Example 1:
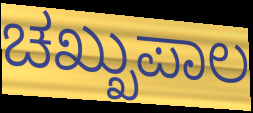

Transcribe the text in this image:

ಚಖ್ಖುಪಾಲ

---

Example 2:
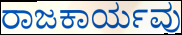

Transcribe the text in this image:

ರಾಜಕಾರ್ಯವು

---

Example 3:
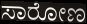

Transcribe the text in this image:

ಸಾರೋಣ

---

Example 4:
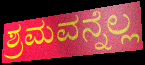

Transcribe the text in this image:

ಶ್ರಮವನ್ನೆಲ್ಲ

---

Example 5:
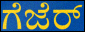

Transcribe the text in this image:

ಗೆಜೆರ್